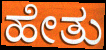
ಹೇತು